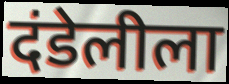
दंडेलीला